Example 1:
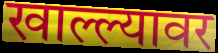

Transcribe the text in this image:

खाल्ल्यावर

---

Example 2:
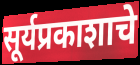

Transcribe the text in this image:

सूर्यप्रकाशाचे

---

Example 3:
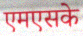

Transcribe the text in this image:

एमएसके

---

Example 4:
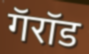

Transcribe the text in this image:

गॅरॉड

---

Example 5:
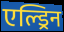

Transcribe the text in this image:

एल्ड्रिन